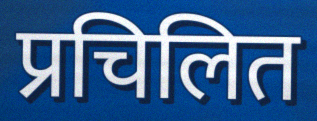
प्रचिलित